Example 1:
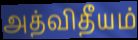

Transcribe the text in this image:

அத்விதீயம்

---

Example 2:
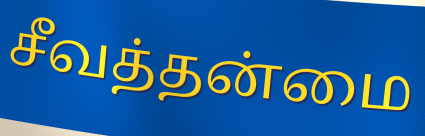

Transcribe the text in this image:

சீவத்தன்மை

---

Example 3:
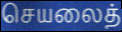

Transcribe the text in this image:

செயலைத்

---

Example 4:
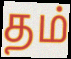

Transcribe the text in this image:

தம்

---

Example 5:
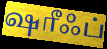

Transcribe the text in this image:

ஷரீஃப்